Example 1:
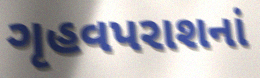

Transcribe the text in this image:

ગૃહવપરાશનાં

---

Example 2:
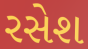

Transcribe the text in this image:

રસેશ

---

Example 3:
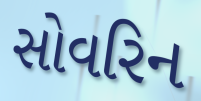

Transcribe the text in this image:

સોવરિન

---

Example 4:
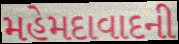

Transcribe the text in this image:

મહેમદાવાદની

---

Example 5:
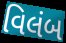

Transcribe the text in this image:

વિલંબ